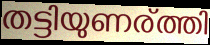
തട്ടിയുണര്ത്തി